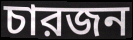
চারজন